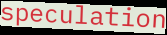
speculation